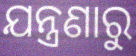
ଯନ୍ତ୍ରଣାରୁ